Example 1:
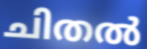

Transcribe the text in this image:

ചിതൽ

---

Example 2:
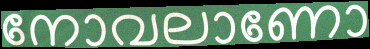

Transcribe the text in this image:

നോവലാണോ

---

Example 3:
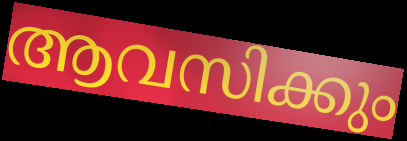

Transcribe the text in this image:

ആവസിക്കും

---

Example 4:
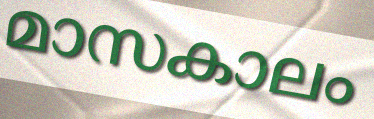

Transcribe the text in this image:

മാസകാലം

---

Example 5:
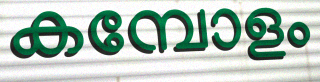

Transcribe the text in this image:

കമ്പോളം